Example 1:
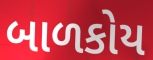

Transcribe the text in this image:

બાળકોય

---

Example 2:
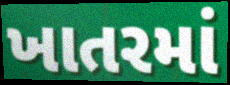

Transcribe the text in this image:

ખાતરમાં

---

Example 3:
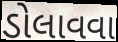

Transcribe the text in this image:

ડોલાવવા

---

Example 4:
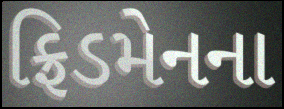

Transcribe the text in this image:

ફ્રિડમેનના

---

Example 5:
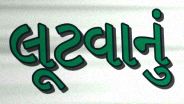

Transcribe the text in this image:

લૂટવાનું